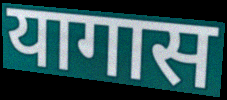
यागास